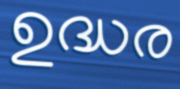
ഉദ്ധര